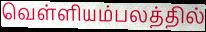
வெள்ளியம்பலத்தில்